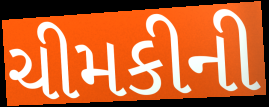
ચીમકીની